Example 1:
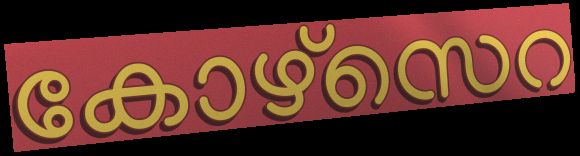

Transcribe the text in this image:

കോഴ്സെറ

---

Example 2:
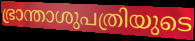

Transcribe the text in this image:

ഭ്രാന്താശുപത്രിയുടെ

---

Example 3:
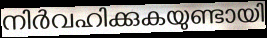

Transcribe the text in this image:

നിർവഹിക്കുകയുണ്ടായി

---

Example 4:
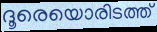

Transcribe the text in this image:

ദൂരെയൊരിടത്ത്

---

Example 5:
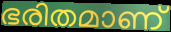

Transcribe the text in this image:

ഭരിതമാണ്